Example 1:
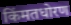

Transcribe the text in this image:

किंमतधोरण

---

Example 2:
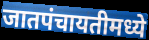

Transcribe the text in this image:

जातपंचायतीमध्ये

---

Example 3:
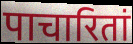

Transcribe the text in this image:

पाचारितां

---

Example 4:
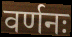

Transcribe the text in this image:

वर्णनः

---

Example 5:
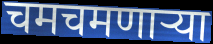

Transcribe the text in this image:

चमचमणाऱ्या